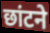
छांटने